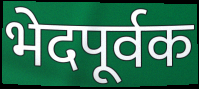
भेदपूर्वक